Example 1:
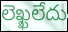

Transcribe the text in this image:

లెఖ్ఖలేదు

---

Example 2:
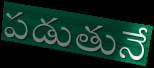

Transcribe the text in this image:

పడుతునే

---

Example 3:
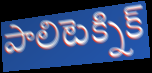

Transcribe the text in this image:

పాలిటెక్నిక్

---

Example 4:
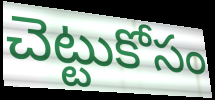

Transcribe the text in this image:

చెట్టుకోసం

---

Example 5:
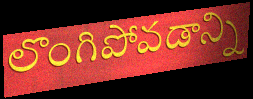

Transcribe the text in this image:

లొంగిపోవడాన్ని